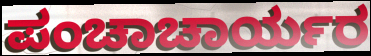
ಪಂಚಾಚಾರ್ಯರ